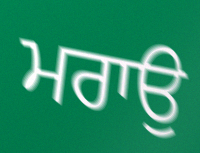
ਮਰਾਉ